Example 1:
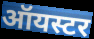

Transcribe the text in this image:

ऑयस्टर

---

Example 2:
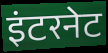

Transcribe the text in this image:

इंटरनेट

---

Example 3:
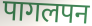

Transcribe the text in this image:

पागलपन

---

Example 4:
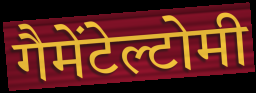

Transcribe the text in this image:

गैमेंटेल्टोमी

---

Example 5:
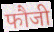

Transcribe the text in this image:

फौजी